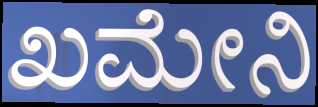
ಖಮೇನಿ